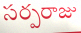
సర్పరాజు